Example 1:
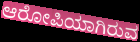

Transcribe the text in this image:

ಆರೋಪಿಯಾಗಿರುವ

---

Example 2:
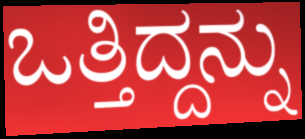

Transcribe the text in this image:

ಒತ್ತಿದ್ದನ್ನು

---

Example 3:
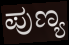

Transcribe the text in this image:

ಪುಣ್ಯ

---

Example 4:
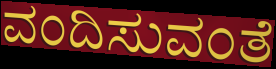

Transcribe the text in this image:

ವಂದಿಸುವಂತೆ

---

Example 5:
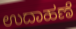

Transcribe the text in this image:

ಉದಾಹಣೆ